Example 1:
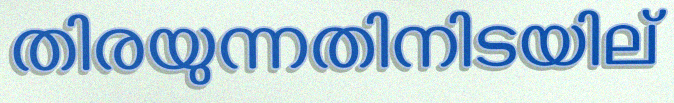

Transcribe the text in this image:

തിരയുന്നതിനിടയില്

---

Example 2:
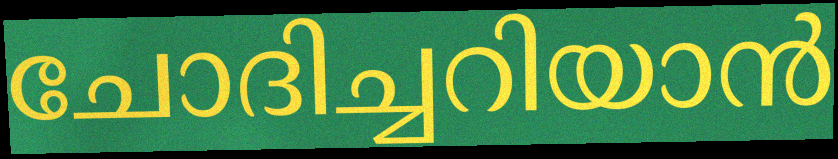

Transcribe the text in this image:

ചോദിച്ചറിയാൻ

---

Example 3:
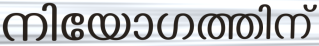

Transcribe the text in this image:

നിയോഗത്തിന്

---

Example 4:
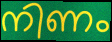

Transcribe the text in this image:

നിണം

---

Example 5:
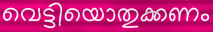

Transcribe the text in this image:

വെട്ടിയൊതുക്കണം